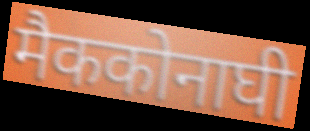
मैककोनाघी